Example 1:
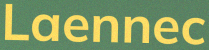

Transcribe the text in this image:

Laennec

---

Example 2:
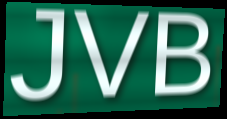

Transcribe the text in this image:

JVB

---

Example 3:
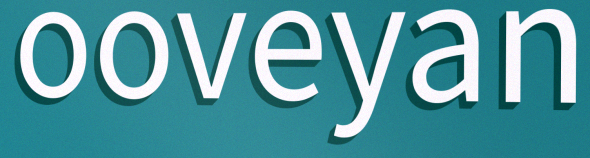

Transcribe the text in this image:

ooveyan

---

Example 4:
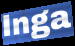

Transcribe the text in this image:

Inga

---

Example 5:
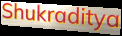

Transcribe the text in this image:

Shukraditya